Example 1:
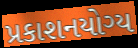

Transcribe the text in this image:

પ્રકાશનયોગ્ય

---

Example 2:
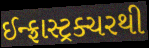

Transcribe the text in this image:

ઈન્ફ્રાસ્ટ્રક્ચરથી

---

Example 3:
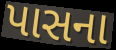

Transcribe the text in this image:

પાસના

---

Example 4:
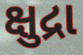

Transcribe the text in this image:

ક્ષુદ્રા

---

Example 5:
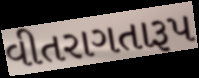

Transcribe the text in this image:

વીતરાગતારૂપ